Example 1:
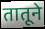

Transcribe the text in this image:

तातूने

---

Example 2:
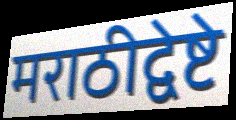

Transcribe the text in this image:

मराठीद्वेष्टे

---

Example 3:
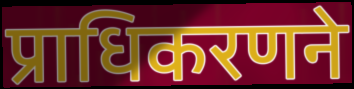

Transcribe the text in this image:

प्राधिकरणने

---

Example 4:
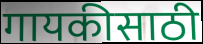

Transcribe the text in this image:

गायकीसाठी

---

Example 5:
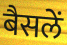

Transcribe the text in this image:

बैसलें